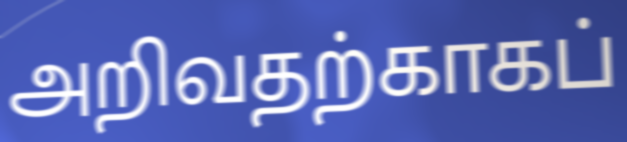
அறிவதற்காகப்